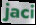
jaci